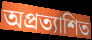
অপ্ৰত্যাশিত